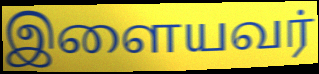
இளையவர்